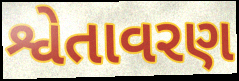
શ્વેતાવરણ